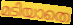
മടിയാതെ